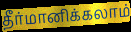
தீர்மானிக்கலாம்